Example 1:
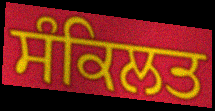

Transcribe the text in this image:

ਸੰਕਿਲਤ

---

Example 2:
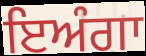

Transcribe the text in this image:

ਇਅੰਗਾ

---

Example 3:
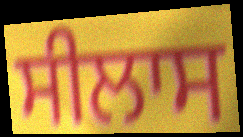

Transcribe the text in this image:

ਸੀਲਾਸ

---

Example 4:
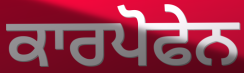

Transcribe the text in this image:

ਕਾਰਪੋਫੇਨ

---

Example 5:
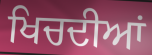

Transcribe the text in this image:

ਖਿਚਦੀਆਂ